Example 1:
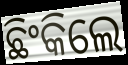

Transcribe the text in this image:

ଛିଂକିଲେ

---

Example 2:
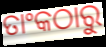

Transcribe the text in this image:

ତାଂକଠାରୁ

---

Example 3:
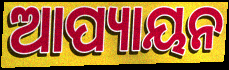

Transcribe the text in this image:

ଆପ୍ୟାୟନ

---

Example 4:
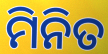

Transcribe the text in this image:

ମିନିତ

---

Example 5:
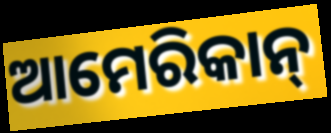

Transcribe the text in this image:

ଆମେରିକାନ୍